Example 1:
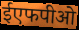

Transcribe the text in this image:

ईएफपीओ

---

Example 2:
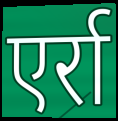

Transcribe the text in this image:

एर्रा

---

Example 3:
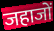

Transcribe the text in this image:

जहाजों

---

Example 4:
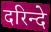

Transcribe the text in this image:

दरिन्दे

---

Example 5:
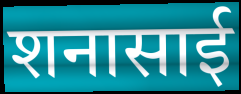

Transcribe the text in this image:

शनासाई